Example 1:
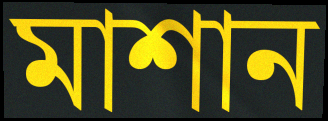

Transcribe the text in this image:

মাশান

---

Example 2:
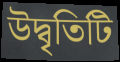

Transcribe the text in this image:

উদ্বৃতিটি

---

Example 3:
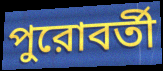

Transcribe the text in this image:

পুরোবর্তী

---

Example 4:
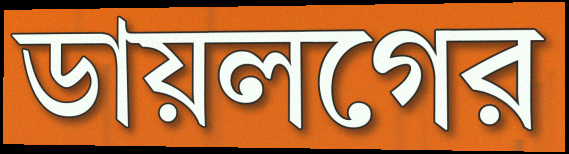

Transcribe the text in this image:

ডায়লগের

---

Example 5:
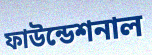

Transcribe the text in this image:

ফাউন্ডেশনাল